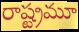
రాష్ట్రమూ